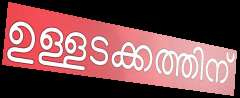
ഉള്ളടക്കത്തിന്